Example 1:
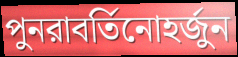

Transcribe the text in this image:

পুনরাবর্তিনোহর্জুন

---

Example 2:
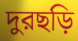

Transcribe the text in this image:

দুরছড়ি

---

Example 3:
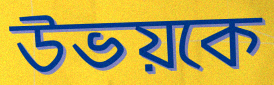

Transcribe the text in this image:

উভয়কে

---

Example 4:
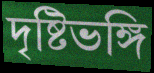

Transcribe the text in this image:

দৃষ্টিভঙ্গি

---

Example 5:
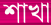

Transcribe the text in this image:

শাখা